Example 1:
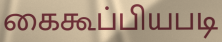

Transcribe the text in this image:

கைகூப்பியபடி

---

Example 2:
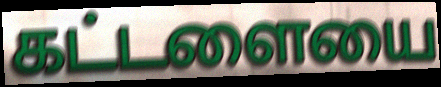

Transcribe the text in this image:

கட்டளையை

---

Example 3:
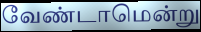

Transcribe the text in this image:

வேண்டாமென்று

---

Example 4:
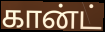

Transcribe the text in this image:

கான்ட்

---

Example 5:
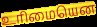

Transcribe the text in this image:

உரிமையென